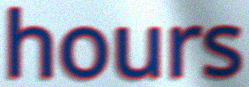
hours